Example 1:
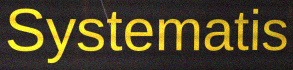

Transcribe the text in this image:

Systematis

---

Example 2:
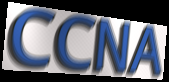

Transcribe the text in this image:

CCNA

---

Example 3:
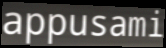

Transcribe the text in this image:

appusami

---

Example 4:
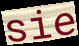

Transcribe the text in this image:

sie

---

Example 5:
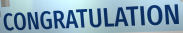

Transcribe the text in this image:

CONGRATULATION